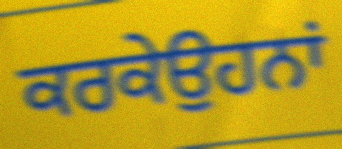
ਕਰਕੇਉਹਨਾਂ